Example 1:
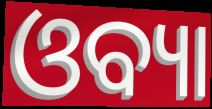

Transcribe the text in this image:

ଓବ୍ୟା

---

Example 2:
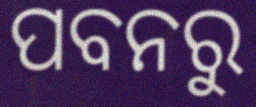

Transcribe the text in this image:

ପବନରୁ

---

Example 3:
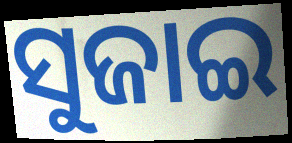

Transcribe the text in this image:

ସୁଜାଇ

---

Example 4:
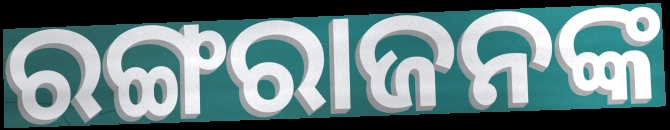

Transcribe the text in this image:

ରଙ୍ଗରାଜନଙ୍କ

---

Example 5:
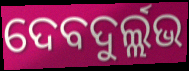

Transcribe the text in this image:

ଦେବଦୁର୍ଲ୍ଲଭ